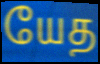
யேத